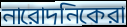
নারোদনিকেরা